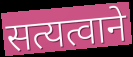
सत्यत्वाने